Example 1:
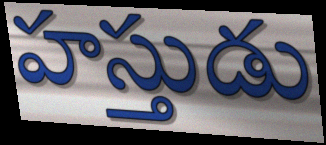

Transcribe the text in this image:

హస్తుడు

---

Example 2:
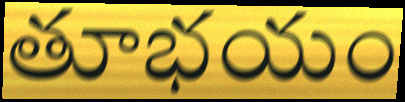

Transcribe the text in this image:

తూభయం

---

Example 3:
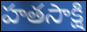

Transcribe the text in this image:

హతసాక్షి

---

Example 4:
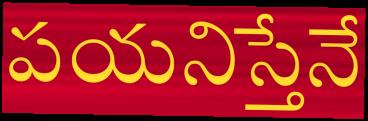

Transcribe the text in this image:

పయనిస్తేనే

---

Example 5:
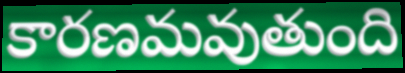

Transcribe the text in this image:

కారణమవుతుంది